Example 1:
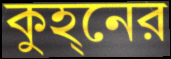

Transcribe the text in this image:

কুহ্‌নের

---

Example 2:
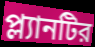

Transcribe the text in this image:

প্ল্যানটির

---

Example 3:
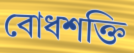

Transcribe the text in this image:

বোধশক্তি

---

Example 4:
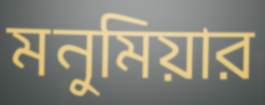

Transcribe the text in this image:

মনুমিয়ার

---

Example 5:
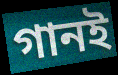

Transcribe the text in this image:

গানই